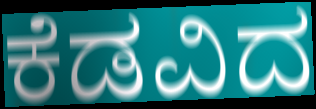
ಕೆಡವಿದ